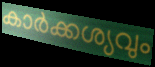
കാർക്കശ്യവും